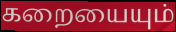
கறையையும்